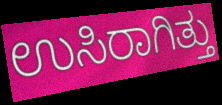
ಉಸಿರಾಗಿತ್ತು